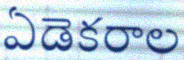
ఏడెకరాల